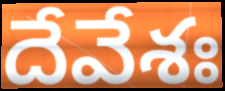
దేవేశః